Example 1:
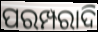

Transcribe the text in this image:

ପରମ୍ପରାଦି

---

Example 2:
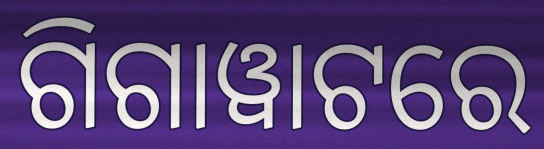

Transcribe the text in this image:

ଗିଗାୱାଟରେ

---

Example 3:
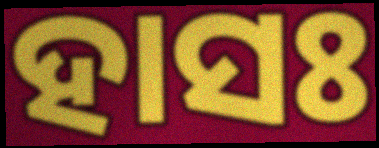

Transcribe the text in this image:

ହାସଃ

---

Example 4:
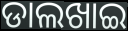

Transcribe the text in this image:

ଡାଲଖାଇ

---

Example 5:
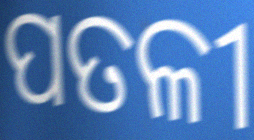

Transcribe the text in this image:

ପତଳୀ